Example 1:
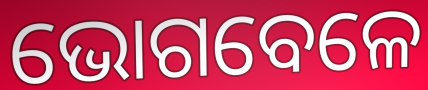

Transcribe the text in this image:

ଭୋଗବେଳେ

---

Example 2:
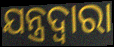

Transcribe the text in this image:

ଯନ୍ତ୍ରଦ୍ଵାରା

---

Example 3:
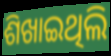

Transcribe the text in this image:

ଶିଖାଇଥିଲି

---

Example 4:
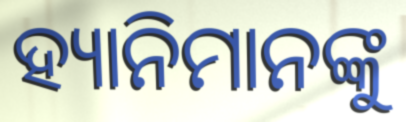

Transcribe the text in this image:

ହ୍ୟାନିମାନଙ୍କୁ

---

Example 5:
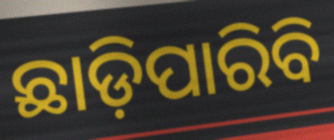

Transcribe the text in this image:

ଛାଡ଼ିପାରିବି